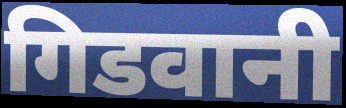
गिडवानी